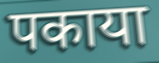
पकाया